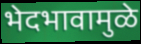
भेदभावामुळे